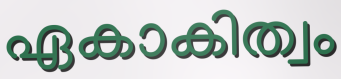
ഏകാകിത്വം